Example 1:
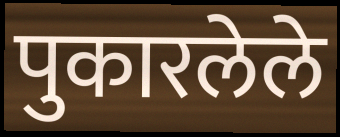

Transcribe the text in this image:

पुकारलेले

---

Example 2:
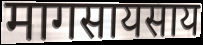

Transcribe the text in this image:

मागसायसाय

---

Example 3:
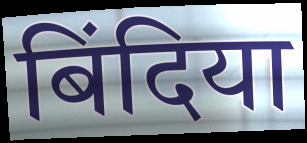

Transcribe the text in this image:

बिंदिया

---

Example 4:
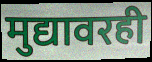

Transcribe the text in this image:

मुद्यावरही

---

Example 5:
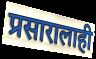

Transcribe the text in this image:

प्रसारालाही